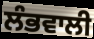
ਲੰਭਵਾਲੀ